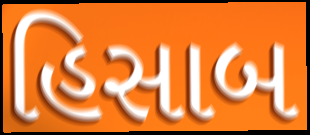
હિસાબ